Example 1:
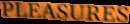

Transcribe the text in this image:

PLEASURES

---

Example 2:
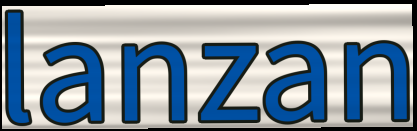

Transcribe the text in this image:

lanzan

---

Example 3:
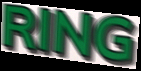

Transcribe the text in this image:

RING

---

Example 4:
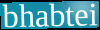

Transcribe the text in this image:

bhabtei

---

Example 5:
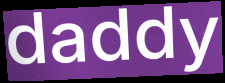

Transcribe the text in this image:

daddy